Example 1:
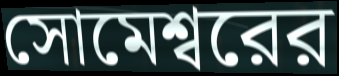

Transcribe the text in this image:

সোমেশ্বরের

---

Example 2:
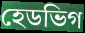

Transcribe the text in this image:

হেডভিগ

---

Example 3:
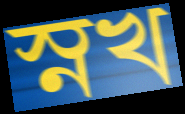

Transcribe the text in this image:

স্নখ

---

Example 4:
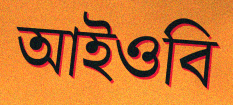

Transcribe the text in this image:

আইওবি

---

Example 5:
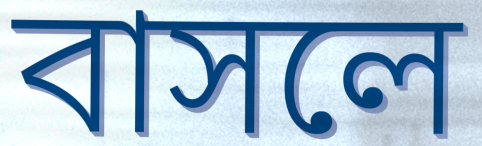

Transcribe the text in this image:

বাসলে